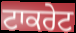
ਟਾਕਰੇਟ